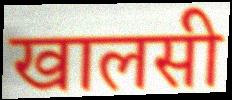
खालसी